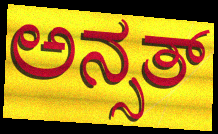
ಅನ್ಸತ್